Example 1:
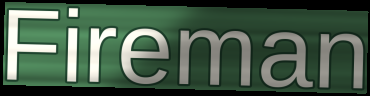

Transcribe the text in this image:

Fireman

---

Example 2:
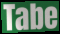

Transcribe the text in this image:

Tabe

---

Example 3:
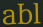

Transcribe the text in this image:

abl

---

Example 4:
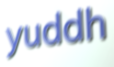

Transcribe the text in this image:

yuddh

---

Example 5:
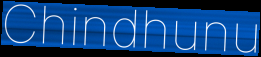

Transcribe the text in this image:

Chindhunu